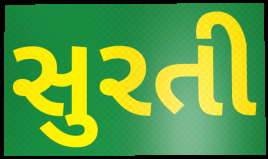
સુરતી